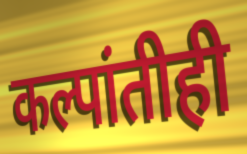
कल्पांतीही